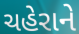
ચહેરાને